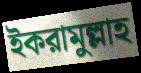
ইকরামুল্লাহ